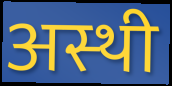
अस्थी